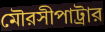
মৌরসীপাট্রার